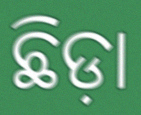
ଛିଡ଼ା